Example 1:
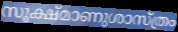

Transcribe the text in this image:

സൂക്ഷ്മാണുശാസ്ത്രം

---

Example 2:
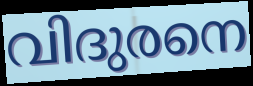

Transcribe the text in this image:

വിദുരനെ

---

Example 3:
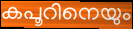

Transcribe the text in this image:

കപൂറിനെയും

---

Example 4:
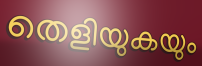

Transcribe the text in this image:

തെളിയുകയും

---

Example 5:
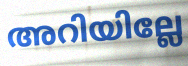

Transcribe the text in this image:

അറിയില്ലേ